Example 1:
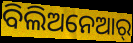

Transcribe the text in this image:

ବିଲିଅନେଆର୍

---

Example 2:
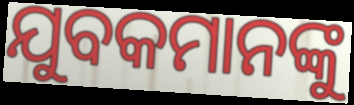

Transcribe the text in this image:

ଯୁବକମାନଙ୍କୁ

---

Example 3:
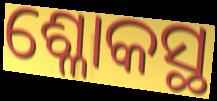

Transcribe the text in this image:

ଶ୍ଳୋକସ୍ଥ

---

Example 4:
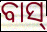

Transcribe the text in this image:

ବାସ୍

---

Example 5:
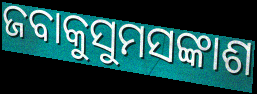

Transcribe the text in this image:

ଜବାକୁସୁମସଙ୍କାଶ